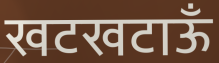
खटखटाऊँ